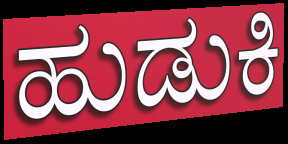
ಹುಡುಕಿ